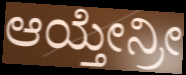
ಆಯ್ತೇನ್ರೀ